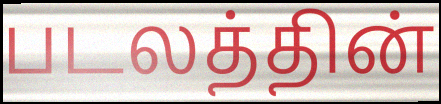
படலத்தின்